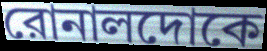
রোনালদোকে